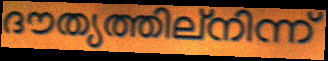
ദൗത്യത്തില്നിന്ന്